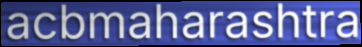
acbmaharashtra